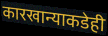
कारखान्याकडेही